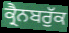
ਕ੍ਰੈਨਬਰੁੱਕ